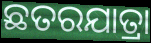
ଛତରଯାତ୍ରା